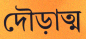
দৌড়াত্ম